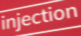
injection